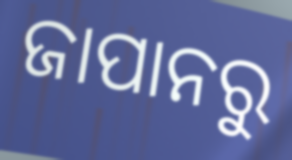
ଜାପାନରୁ